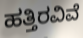
ಹತ್ತಿರವಿವೆ